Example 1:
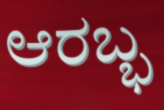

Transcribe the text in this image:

ಆರಬ್ಭ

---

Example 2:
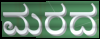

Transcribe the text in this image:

ಮರದ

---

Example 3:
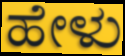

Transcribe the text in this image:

ಹೇಳು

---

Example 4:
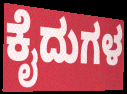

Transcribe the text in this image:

ಕೈದುಗಳ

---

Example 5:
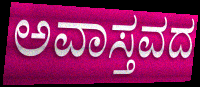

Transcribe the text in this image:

ಅವಾಸ್ತವದ